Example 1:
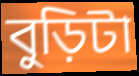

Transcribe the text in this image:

বুড়িটা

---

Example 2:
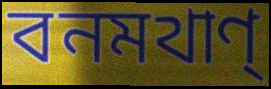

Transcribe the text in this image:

বনমথাণ্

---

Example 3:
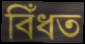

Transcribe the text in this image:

বিঁধত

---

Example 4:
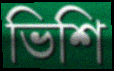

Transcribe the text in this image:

ভিশি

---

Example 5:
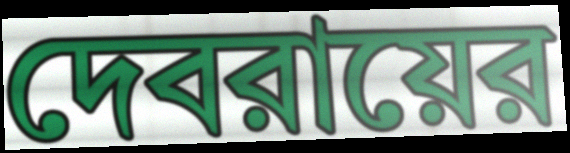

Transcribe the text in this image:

দেবরায়ের